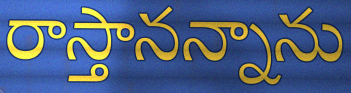
రాస్తానన్నాను